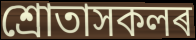
শ্ৰোতাসকলৰ